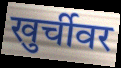
खुर्चीवर